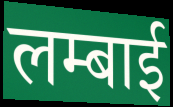
लम्बाई